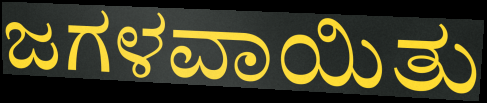
ಜಗಳವಾಯಿತು